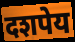
दशपेय